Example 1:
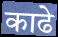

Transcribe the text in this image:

काढे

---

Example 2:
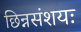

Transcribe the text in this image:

छिन्नसंशयः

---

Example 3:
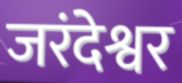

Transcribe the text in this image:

जरंदेश्वर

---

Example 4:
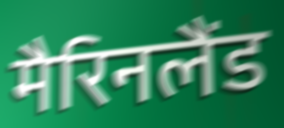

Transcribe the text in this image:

मैरिनलैंड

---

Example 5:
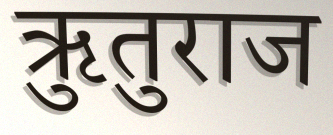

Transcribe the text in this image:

ऋुतुराज